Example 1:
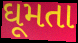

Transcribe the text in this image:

ઘૂમતા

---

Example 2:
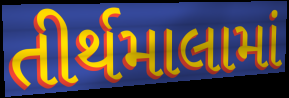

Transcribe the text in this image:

તીર્થમાલામાં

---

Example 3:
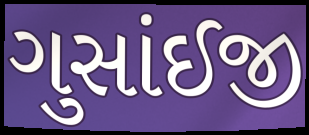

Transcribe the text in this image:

ગુસાંઈજી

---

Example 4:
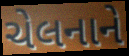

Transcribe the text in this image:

ચેલનાને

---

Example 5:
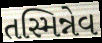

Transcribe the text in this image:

તસ્મિન્નેવ